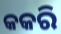
କକରି